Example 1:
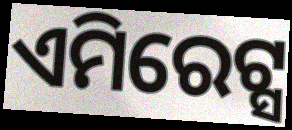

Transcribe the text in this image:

ଏମିରେଟ୍ସ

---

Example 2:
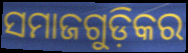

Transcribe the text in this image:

ସମାଜଗୁଡ଼ିକର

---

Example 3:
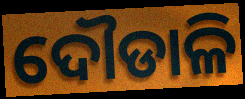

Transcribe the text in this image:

ଦୌଡାଳି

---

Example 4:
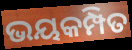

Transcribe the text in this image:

ଭୟକମ୍ପିତ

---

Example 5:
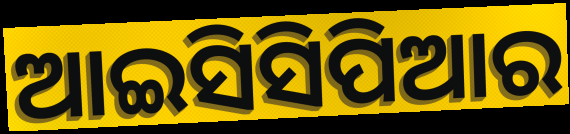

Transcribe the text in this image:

ଆଇସିସିପିଆର